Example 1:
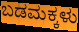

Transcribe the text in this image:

ಬಡಮಕ್ಕಳು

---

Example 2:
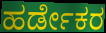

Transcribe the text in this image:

ಹರ್ಡೇಕರ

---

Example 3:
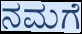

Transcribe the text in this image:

ನಮಗೆ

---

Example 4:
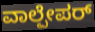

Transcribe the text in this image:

ವಾಲ್ಪೇಪರ್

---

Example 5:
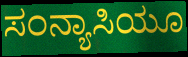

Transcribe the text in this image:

ಸಂನ್ಯಾಸಿಯೂ